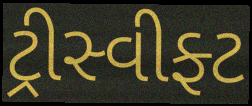
ટ્રીસ્વીફ્ટ